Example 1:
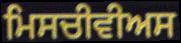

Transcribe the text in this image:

ਮਿਸਚੀਵੀਅਸ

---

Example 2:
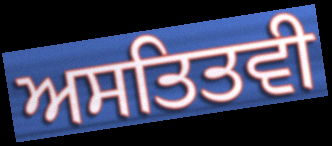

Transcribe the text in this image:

ਅਸਤਿਤਵੀ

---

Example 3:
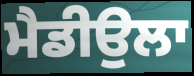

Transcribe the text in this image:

ਮੈਡੀਉਲਾ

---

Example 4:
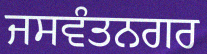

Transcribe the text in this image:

ਜਸਵੰਤਨਗਰ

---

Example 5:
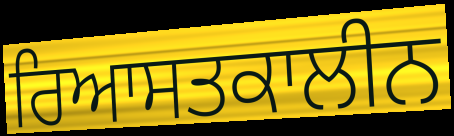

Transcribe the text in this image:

ਰਿਆਸਤਕਾਲੀਨ